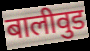
बालीवुड